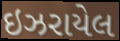
ઇઝરાયેલ